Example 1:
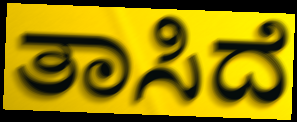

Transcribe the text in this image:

ತಾಸಿದೆ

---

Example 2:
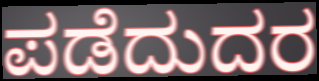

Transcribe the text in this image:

ಪಡೆದುದರ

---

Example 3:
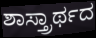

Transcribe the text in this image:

ಶಾಸ್ತ್ರಾರ್ಥದ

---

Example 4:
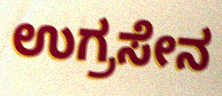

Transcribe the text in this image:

ಉಗ್ರಸೇನ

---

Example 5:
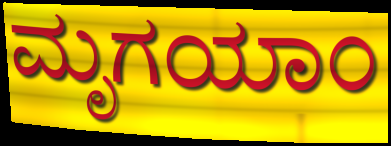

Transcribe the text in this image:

ಮೃಗಯಾಂ